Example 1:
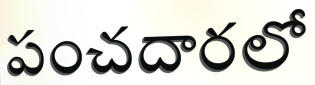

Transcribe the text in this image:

పంచదారలో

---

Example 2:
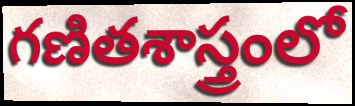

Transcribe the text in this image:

గణితశాస్త్రంలో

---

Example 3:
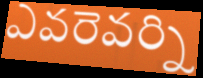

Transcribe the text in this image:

ఎవరెవర్ని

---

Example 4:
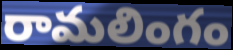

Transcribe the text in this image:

రామలింగం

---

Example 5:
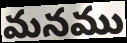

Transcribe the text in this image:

మనము